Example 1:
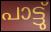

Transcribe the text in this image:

പാട്ടു്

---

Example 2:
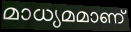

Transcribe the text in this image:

മാധ്യമമാണ്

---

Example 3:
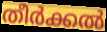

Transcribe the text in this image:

തീർക്കൽ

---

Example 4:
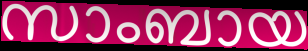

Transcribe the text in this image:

സാംബായ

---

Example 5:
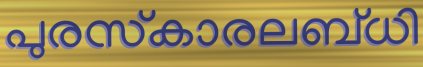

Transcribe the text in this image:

പുരസ്‌കാരലബ്ധി